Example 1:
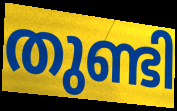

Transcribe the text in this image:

തുണ്ടി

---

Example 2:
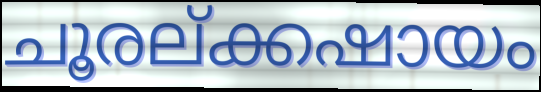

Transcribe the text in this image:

ചൂരല്ക്കഷായം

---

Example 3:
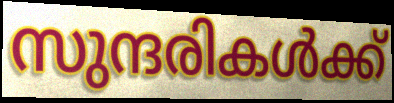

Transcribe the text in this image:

സുന്ദരികൾക്ക്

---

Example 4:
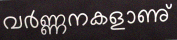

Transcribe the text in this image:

വർണ്ണനകളാണു്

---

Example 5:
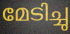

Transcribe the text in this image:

മേടിച്ചു